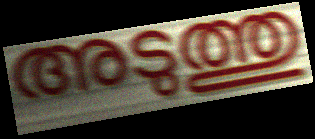
അടുത്തു